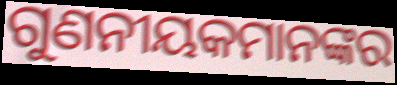
ଗୁଣନୀୟକମାନଙ୍କର